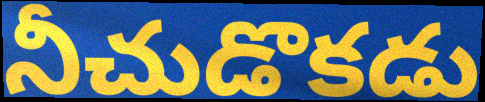
నీచుడొకడు